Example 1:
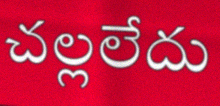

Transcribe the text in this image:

చల్లలేదు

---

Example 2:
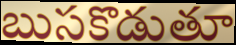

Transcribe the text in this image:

బుసకొడుతూ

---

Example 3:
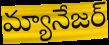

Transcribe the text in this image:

మ్యానేజర్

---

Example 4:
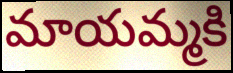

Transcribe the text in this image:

మాయమ్మకి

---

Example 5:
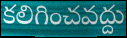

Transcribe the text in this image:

కలిగించవద్దు